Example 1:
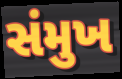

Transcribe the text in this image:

સંમુખ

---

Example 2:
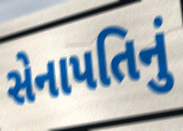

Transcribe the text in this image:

સેનાપતિનું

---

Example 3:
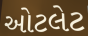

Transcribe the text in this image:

ઓટલેટ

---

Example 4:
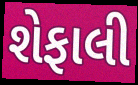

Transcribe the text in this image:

શેફાલી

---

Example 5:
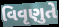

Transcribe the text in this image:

વિવૃણુતે